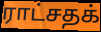
ராட்சதக்